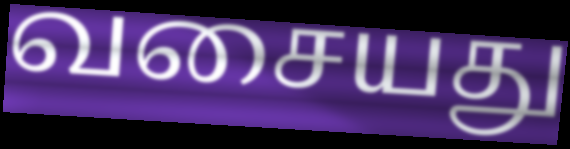
வசையது